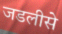
जडलीसे